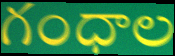
గంధాల